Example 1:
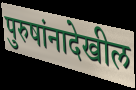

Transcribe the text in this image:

पुरुषांनादेखील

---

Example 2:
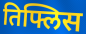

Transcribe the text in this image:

तिफ्लिस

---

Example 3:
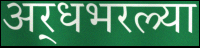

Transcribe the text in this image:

अर्धभरल्या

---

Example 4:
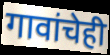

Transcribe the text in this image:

गावांचेही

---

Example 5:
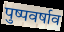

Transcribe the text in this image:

पुष्पवर्षाव